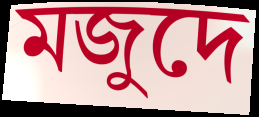
মজুদে